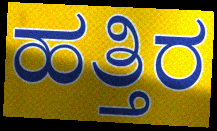
ಹತ್ತಿರ